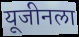
यूजीनला